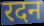
रदन